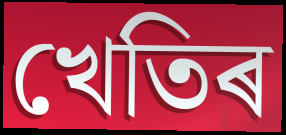
খেতিৰ